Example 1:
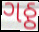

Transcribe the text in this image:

ગઠ્ઠ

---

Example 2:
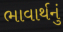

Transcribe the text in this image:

ભાવાર્થનું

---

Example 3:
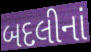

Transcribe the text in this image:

બદલીનાં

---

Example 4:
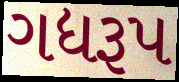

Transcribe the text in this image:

ગદ્યરૂપ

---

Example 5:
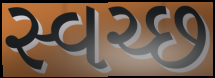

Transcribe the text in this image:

સ્વચ્છ